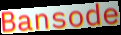
Bansode